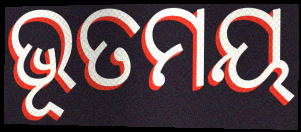
ଭୂତମୟ